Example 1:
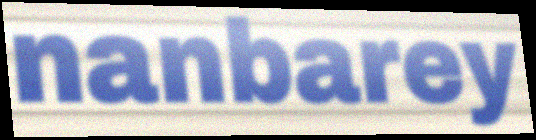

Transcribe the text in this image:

nanbarey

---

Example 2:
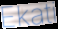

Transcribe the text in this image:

Ekati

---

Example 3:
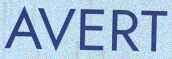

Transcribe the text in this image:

AVERT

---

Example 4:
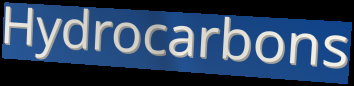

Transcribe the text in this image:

Hydrocarbons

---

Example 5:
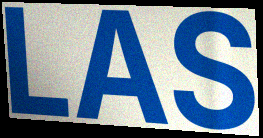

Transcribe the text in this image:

LAS